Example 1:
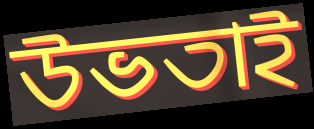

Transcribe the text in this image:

উভতাই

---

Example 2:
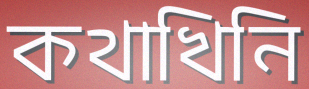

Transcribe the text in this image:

কথাখিনি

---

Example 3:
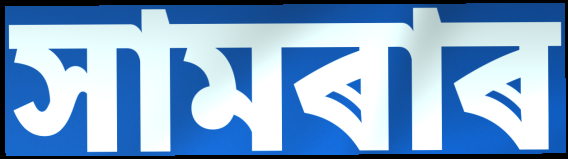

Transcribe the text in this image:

সামৰাৰ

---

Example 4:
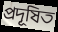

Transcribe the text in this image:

প্ৰদূষিত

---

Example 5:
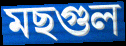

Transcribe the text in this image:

মছগুল